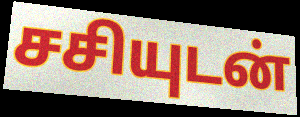
சசியுடன்